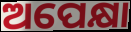
ଅପେକ୍ଷା